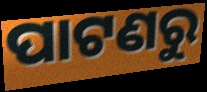
ପାଟଣରୁ